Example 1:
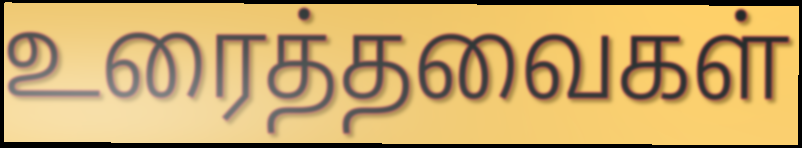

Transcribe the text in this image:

உரைத்தவைகள்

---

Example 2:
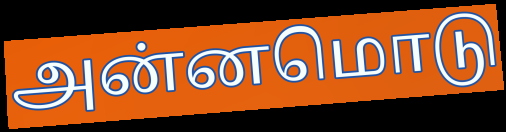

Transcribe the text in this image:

அன்னமொடு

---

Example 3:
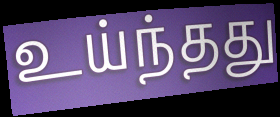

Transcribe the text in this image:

உய்ந்தது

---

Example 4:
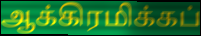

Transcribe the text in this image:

ஆக்கிரமிக்கப்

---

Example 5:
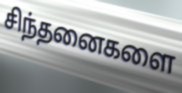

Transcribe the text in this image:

சிந்தனைகளை